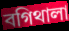
বগিথালা